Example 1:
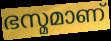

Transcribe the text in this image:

ഭസ്മമാണ്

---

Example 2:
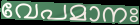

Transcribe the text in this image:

വേപമാനഃ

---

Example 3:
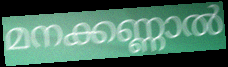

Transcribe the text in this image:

മനക്കണ്ണാൽ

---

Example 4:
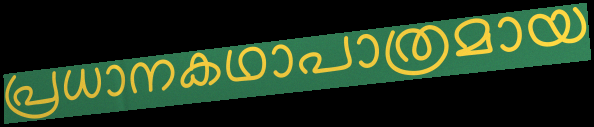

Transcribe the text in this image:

പ്രധാനകഥാപാത്രമായ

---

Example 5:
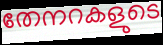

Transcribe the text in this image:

തേനറകളുടെ